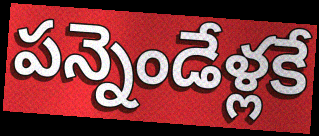
పన్నెండేళ్లకే